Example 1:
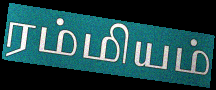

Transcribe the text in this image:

ரம்மியம்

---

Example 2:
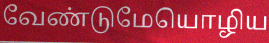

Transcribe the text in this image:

வேண்டுமேயொழிய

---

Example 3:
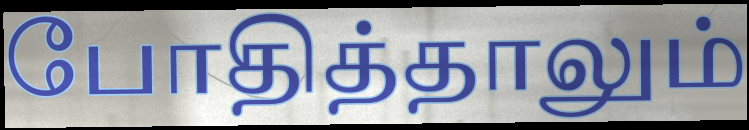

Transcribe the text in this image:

போதித்தாலும்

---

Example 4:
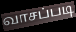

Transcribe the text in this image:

வாசப்படி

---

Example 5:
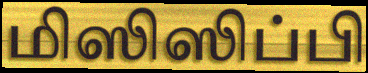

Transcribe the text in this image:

மிஸிஸிப்பி